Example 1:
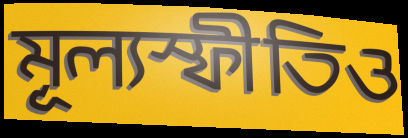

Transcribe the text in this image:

মূল্যস্ফীতিও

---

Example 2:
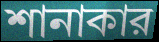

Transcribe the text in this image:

শানাকার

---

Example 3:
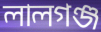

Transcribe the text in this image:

লালগঞ্জ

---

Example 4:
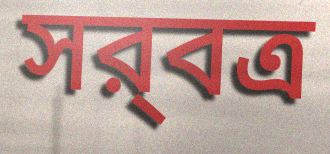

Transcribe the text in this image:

সর্‍বত্র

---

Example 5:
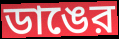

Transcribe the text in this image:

ডাঙের